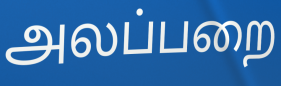
அலப்பறை